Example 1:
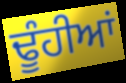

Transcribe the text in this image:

ਢੂੰਹੀਆਂ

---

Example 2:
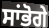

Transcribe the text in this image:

ਸਾਂਭੋਗੇ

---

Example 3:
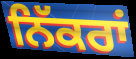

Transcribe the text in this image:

ਨਿੱਕਰਾਂ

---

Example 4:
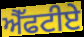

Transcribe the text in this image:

ਐੱਫਟੀਏ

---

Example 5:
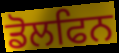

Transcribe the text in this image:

ਡੋਲਫਿਨ